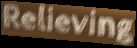
Relieving